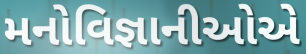
મનોવિજ્ઞાનીઓએ